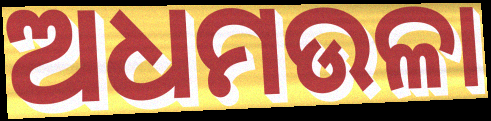
ଅଧମଉଳା